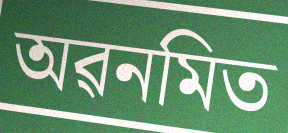
অৱনমিত